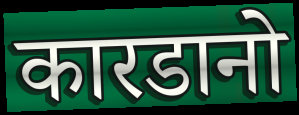
कारडानो